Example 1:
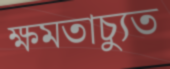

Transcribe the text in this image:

ক্ষমতাচ্যুত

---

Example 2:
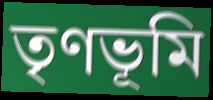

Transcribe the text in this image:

তৃণভূমি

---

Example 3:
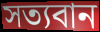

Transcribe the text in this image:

সত্যবান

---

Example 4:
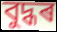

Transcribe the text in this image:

বুদ্ধৰ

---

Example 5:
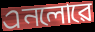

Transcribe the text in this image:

এনলোৱে